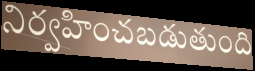
నిర్వహించబడుతుంది